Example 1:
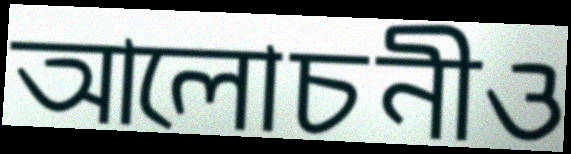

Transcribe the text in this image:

আলোচনীও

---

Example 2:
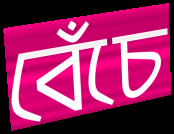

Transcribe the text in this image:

বেঁচে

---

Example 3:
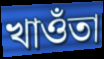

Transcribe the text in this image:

খাওঁতা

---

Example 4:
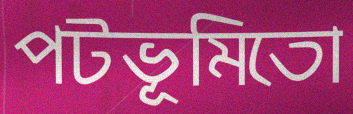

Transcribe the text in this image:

পটভূমিতো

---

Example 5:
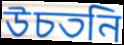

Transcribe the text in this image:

উচতনি